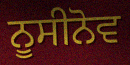
ਨੂਸੀਨੋਵ